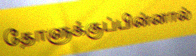
தோளுக்குப்பின்னால்